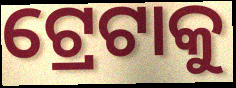
ଟ୍ରେଟାକୁ